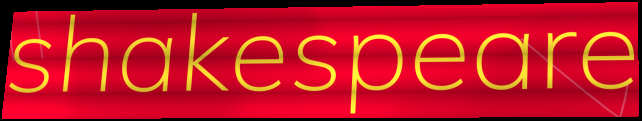
shakespeare